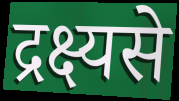
द्रक्ष्यसे